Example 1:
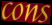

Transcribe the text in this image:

cons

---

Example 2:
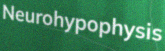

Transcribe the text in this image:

Neurohypophysis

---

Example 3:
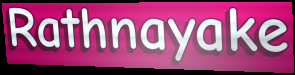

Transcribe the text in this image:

Rathnayake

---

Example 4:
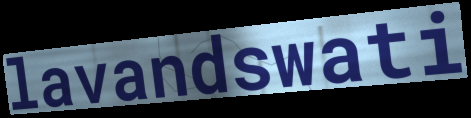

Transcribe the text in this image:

lavandswati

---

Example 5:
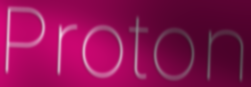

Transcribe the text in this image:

Proton